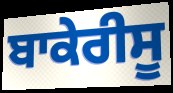
ਬਾਕੇਰੀਸੂ